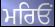
ਮਰਿਓਂ